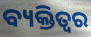
ବ୍ୟକ୍ତିତ୍ବର